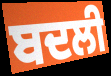
ਬਦਲੀ